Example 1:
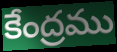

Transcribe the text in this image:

కేంద్రము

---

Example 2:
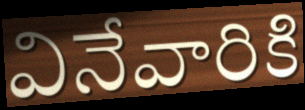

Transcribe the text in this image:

వినేవారికి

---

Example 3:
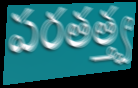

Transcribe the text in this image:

పరతత్త్వ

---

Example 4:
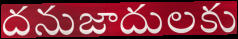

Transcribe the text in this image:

దనుజాదులకు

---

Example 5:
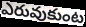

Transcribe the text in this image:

ఎరువుకుంట